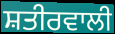
ਸ਼ਤੀਰਵਾਲੀ